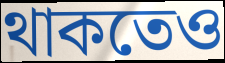
থাকতেও